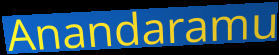
Anandaramu